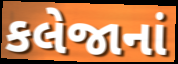
કલેજાનાં